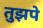
तुझपे